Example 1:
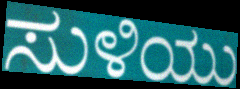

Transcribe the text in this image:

ಸುಳಿಯು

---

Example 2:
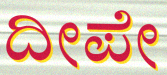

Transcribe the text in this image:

ದೀಪೇ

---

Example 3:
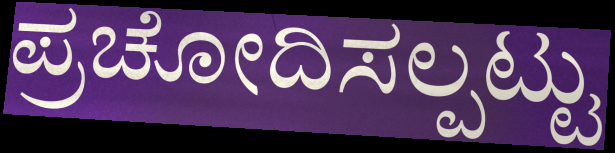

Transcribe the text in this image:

ಪ್ರಚೋದಿಸಲ್ಪಟ್ಟು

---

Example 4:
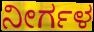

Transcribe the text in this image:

ನೀರ್ಗಳ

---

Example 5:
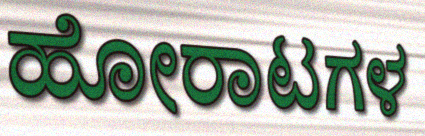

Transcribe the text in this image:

ಹೋರಾಟಗಳ